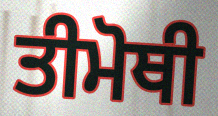
ਤੀਮੋਥੀ